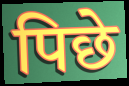
पिछे